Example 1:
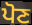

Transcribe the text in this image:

ਪੋਣ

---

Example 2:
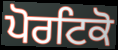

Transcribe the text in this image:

ਪੋਰਟਿਕੋ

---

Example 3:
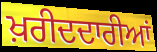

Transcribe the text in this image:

ਖ਼ਰੀਦਦਾਰੀਆਂ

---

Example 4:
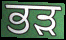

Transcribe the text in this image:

ਭੜ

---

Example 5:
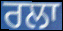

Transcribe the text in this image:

ਰਲਾ